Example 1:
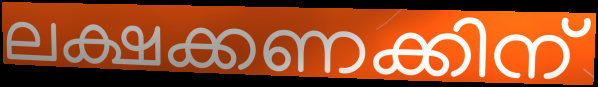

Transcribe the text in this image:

ലക്ഷക്കണക്കിന്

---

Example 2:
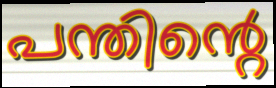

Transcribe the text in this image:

പന്തിന്റെ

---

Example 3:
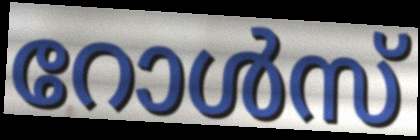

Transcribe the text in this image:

റോൾസ്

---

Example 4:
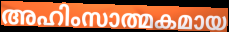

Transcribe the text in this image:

അഹിംസാത്മകമായ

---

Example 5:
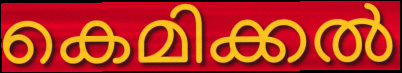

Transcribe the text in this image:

കെമിക്കൽ